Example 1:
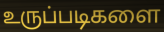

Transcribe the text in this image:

உருப்படிகளை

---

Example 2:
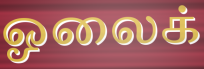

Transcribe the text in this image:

ஓலைக்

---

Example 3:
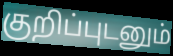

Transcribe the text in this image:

குறிப்புடனும்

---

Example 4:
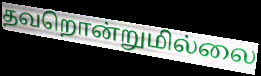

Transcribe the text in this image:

தவறொன்றுமில்லை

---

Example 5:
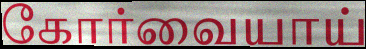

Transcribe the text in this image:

கோர்வையாய்